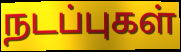
நடப்புகள்